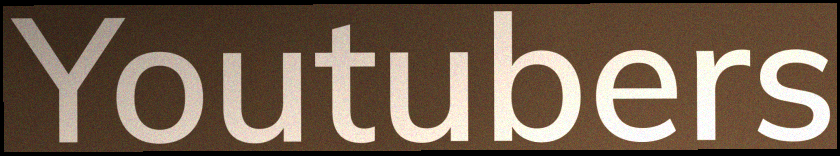
Youtubers